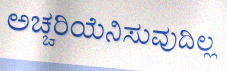
ಅಚ್ಚರಿಯೆನಿಸುವುದಿಲ್ಲ